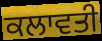
ਕਲਾਵਤੀ